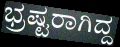
ಭ್ರಷ್ಟರಾಗಿದ್ದ